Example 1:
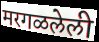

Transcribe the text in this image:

मरगळलेली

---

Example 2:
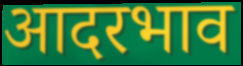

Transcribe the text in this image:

आदरभाव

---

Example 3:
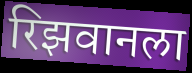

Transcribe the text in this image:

रिझवानला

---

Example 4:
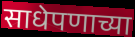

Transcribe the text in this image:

साधेपणाच्या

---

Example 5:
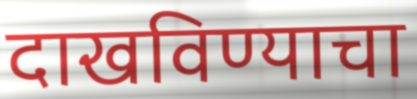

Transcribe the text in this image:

दाखविण्याचा